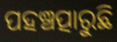
ପହଞ୍ଚତ୍ପାରୁଛି